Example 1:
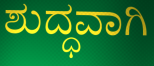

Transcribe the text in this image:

ಶುದ್ಧವಾಗಿ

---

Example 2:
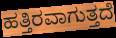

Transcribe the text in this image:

ಹತ್ತಿರವಾಗುತ್ತದೆ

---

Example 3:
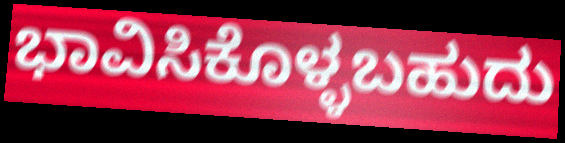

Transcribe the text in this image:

ಭಾವಿಸಿಕೊಳ್ಳಬಹುದು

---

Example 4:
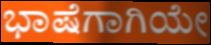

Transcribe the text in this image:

ಭಾಷೆಗಾಗಿಯೇ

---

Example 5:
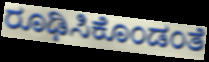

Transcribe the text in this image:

ರೂಢಿಸಿಕೊಂಡಂತೆ